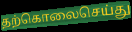
தற்கொலைசெய்து